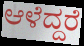
ಆಳೆದ್ದರೆ